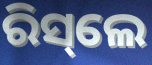
ରିସ୍‌ଲେ